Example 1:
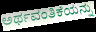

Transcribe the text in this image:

ಅರ್ಥವಂತಿಕೆಯನ್ನು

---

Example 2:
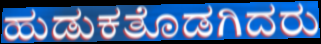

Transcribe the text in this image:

ಹುಡುಕತೊಡಗಿದರು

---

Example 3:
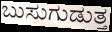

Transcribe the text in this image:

ಬುಸುಗುಡುತ್ತ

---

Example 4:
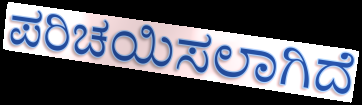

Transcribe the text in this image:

ಪರಿಚಯಿಸಲಾಗಿದೆ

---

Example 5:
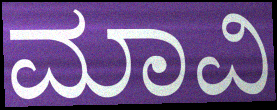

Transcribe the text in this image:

ಮಾವಿ